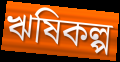
ঋষিকল্প